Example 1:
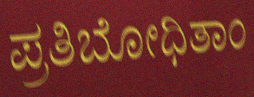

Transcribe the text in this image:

ಪ್ರತಿಬೋಧಿತಾಂ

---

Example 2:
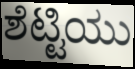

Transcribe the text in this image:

ಶೆಟ್ಟಿಯು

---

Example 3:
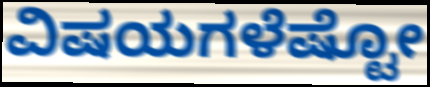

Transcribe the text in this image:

ವಿಷಯಗಳೆಷ್ಟೋ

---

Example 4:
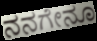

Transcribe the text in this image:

ನನಗೇನೂ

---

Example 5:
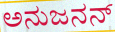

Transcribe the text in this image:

ಅನುಜನನ್